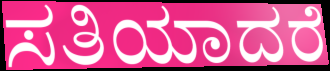
ಸತಿಯಾದರೆ